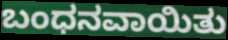
ಬಂಧನವಾಯಿತು